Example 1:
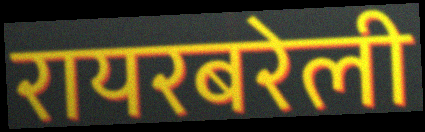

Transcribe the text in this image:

रायरबरेली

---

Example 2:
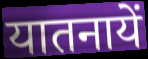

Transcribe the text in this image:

यातनायें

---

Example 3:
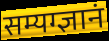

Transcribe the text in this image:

सम्यग्ज्ञानं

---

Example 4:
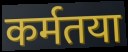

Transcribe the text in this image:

कर्मतया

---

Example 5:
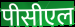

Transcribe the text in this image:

पीसीएल